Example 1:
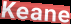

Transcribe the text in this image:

Keane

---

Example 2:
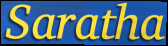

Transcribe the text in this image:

Saratha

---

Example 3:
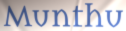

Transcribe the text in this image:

Munthu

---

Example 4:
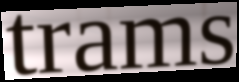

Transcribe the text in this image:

trams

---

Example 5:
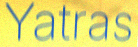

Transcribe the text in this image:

Yatras